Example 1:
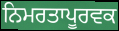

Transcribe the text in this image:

ਨਿਮਰਤਾਪੂਰਵਕ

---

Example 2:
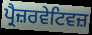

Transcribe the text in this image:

ਪ੍ਰੈਜ਼ਰਵੇਟਿਵਜ਼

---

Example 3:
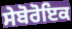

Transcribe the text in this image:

ਸੇਬੋਰੋਇਕ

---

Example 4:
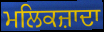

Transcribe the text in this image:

ਮਲਿਕਜ਼ਾਦਾ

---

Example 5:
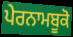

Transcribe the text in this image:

ਪੇਰਨਾਮਬੂਕੋ